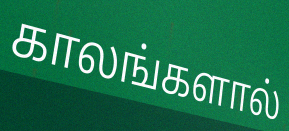
காலங்களால்